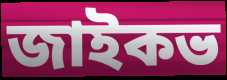
জাইকভ